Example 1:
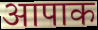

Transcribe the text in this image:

आपाक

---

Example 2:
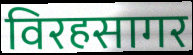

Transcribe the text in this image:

विरहसागर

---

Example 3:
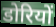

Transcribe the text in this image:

डोरियों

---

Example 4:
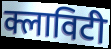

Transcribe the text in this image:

क्लाविटी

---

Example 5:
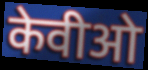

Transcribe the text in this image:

केवीओ